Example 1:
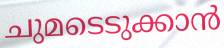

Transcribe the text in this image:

ചുമടെടുക്കാൻ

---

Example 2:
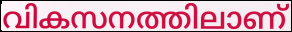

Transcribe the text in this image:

വികസനത്തിലാണ്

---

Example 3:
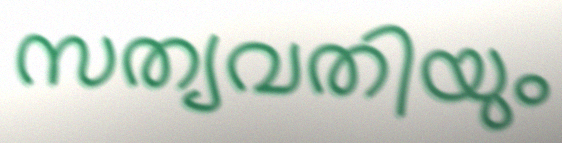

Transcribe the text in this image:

സത്യവതിയും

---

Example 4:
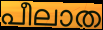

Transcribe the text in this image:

പീലാത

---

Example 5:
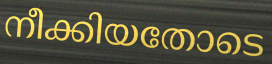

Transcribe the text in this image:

നീക്കിയതോടെ